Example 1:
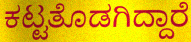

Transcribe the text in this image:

ಕಟ್ಟತೊಡಗಿದ್ದಾರೆ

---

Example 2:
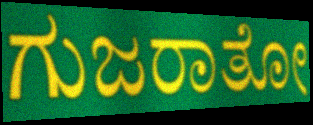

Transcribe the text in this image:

ಗುಜರಾತೋ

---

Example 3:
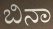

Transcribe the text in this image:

ಬಿನಾ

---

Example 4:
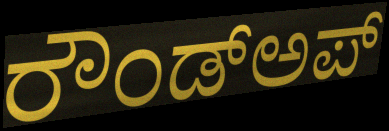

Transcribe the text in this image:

ರೌಂಡ್ಅಪ್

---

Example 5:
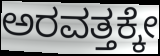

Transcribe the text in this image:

ಅರವತ್ತಕ್ಕೇ